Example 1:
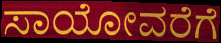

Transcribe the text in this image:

ಸಾಯೋವರೆಗೆ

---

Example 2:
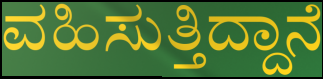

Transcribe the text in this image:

ವಹಿಸುತ್ತಿದ್ದಾನೆ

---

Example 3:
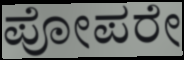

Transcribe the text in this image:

ಪೋಪರೇ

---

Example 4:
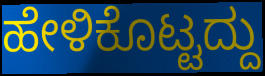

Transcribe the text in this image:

ಹೇಳಿಕೊಟ್ಟದ್ದು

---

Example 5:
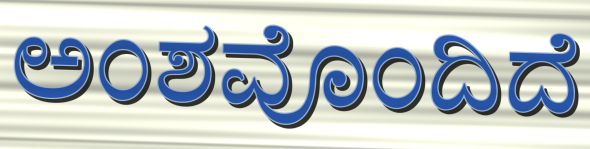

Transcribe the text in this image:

ಅಂಶವೊಂದಿದೆ